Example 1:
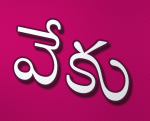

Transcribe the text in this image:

వేకు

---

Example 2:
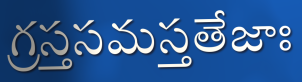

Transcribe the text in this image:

గ్రస్తసమస్తతేజాః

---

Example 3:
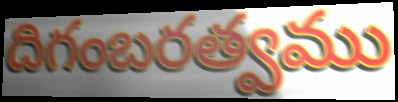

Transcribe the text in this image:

దిగంబరత్వము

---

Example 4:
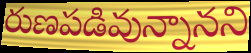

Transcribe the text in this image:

రుణపడివున్నానని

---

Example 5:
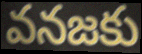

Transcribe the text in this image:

వనజకు